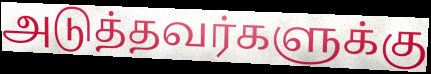
அடுத்தவர்களுக்கு